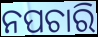
ନପଚାରି